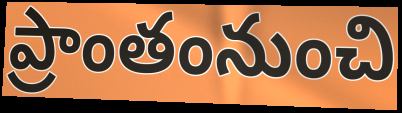
ప్రాంతంనుంచి